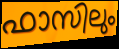
ഫാസിലും